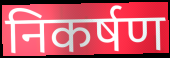
निकर्षण